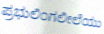
ಪ್ರಭುಲಿಂಗಲೀಲೆಯು